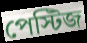
পেস্টিজ